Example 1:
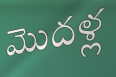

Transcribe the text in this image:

మొదళ్ల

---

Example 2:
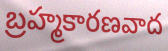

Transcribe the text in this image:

బ్రహ్మకారణవాద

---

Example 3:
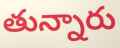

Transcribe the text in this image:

తున్నారు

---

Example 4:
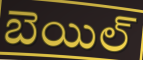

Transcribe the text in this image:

బెయిల్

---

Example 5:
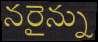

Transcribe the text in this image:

నరైన్ను